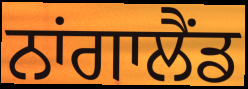
ਨਾਂਗਾਲੈਂਡ